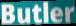
Butler